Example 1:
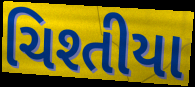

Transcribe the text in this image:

ચિશ્તીયા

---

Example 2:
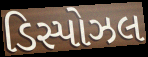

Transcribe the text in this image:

ડિસ્પોઝલ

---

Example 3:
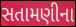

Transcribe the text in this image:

સતામણીના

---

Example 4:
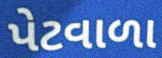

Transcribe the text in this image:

પેટવાળા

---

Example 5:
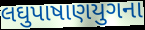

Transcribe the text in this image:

લઘુપાષાણયુગના